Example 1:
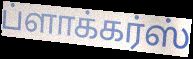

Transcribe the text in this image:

ப்ளாக்கர்ஸ்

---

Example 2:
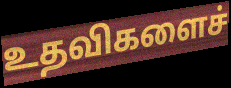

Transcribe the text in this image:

உதவிகளைச்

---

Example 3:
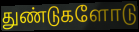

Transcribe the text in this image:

துண்டுகளோடு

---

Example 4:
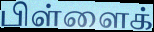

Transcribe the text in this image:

பிள்ளைக்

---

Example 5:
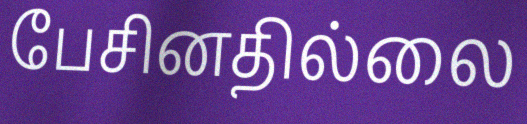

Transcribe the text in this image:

பேசினதில்லை